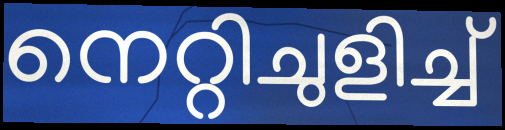
നെറ്റിചുളിച്ച്